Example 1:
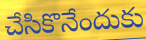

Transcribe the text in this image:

చేసికొనేందుకు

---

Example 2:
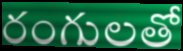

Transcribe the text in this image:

రంగులతో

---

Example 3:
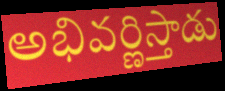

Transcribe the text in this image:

అభివర్ణిస్తాడు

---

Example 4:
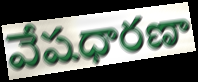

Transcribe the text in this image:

వేషధారణా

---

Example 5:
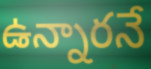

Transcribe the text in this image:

ఉన్నారనే